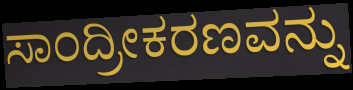
ಸಾಂದ್ರೀಕರಣವನ್ನು